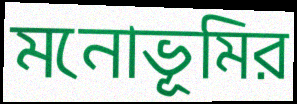
মনোভূমির